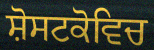
ਸ਼ੋਸਟਕੋਵਿਚ